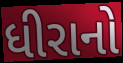
ધીરાનો